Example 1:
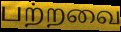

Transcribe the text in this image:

பற்றவை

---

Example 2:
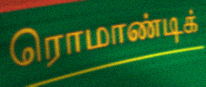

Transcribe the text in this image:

ரொமாண்டிக்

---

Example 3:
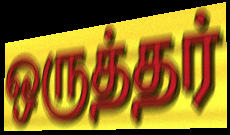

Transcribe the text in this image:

ஒருத்தர்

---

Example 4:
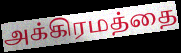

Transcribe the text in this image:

அக்கிரமத்தை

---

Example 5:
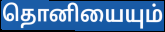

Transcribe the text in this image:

தொனியையும்